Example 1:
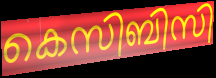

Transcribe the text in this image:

കെസിബിസി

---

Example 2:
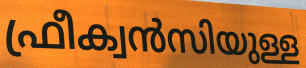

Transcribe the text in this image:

ഫ്രീക്വൻസിയുള്ള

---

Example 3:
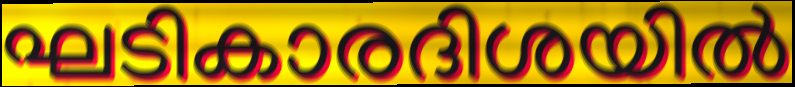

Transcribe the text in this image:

ഘടികാരദിശയിൽ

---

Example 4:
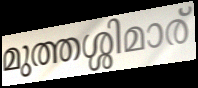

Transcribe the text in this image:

മുത്തശ്ശിമാര്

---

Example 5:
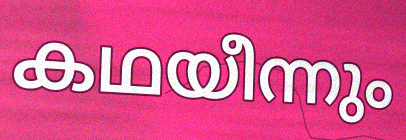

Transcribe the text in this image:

കഥയീന്നും